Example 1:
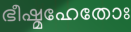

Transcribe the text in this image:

ഭീഷ്മഹേതോഃ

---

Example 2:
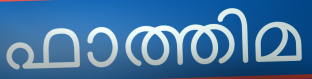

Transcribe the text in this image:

ഫാത്തിമ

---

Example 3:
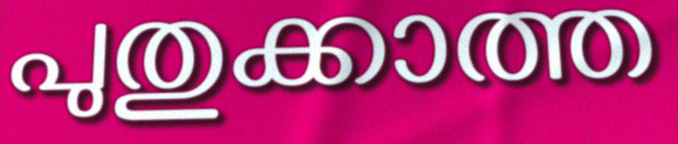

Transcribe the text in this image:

പുതുക്കാത്ത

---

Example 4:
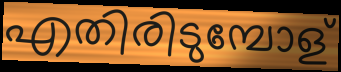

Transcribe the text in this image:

എതിരിടുമ്പോള്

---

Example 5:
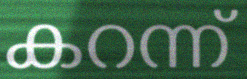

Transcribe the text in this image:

കറന്ന്